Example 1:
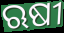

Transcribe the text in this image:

ଋଷୀ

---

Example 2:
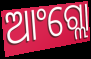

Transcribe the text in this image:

ଆଂଗ୍ଲୋ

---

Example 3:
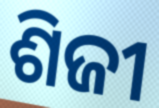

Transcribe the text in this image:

ଶିଜୀ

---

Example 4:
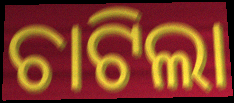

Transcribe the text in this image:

ଚାଟିଲା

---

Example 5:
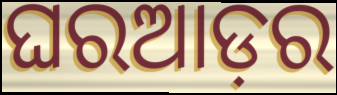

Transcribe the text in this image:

ଘରଆଡ଼ର